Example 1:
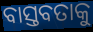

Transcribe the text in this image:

ବାସ୍ତବତାକୁ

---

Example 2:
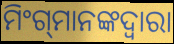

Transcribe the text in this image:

ମିଂଗ୍‍ମାନଙ୍କଦ୍ୱାରା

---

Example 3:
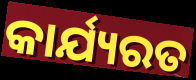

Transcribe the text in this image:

କାର୍ଯ୍ୟରତ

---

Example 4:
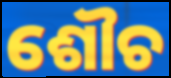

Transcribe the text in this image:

ଶୌଚ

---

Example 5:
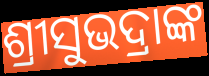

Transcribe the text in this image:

ଶ୍ରୀସୁଭଦ୍ରାଙ୍କ